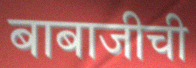
बाबाजीची